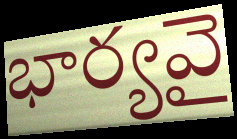
భార్యవై